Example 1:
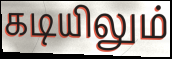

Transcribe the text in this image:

கடியிலும்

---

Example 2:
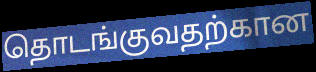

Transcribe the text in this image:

தொடங்குவதற்கான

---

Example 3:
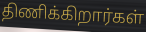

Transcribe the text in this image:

திணிக்கிறார்கள்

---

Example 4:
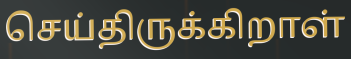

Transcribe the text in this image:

செய்திருக்கிறாள்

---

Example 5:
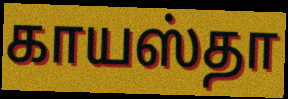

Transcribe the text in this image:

காயஸ்தா